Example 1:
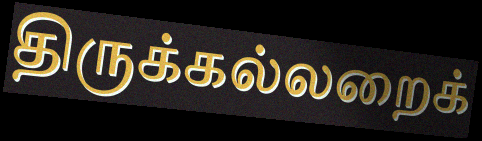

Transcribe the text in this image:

திருக்கல்லறைக்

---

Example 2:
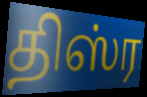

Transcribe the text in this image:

திஸ்ர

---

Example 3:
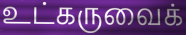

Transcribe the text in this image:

உட்கருவைக்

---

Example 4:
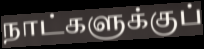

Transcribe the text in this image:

நாட்களுக்குப்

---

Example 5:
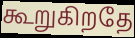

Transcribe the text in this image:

கூறுகிறதே